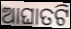
ଆଘାତଟି